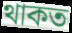
থাকত